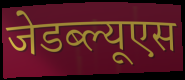
जेडब्ल्यूएस